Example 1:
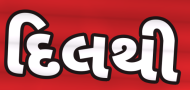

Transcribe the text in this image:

દિલથી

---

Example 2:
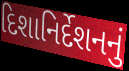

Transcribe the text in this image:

દિશાનિર્દેશનનું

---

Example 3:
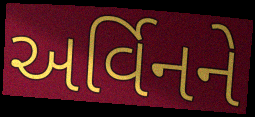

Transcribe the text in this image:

અર્વિનને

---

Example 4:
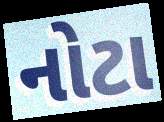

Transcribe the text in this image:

નોટા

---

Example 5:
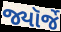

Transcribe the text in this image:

જ્યૉર્જે